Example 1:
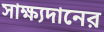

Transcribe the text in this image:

সাক্ষ্যদানের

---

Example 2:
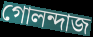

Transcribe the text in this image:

গোলন্দাজ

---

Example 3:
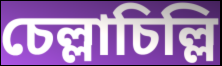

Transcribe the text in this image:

চেল্লাচিল্লি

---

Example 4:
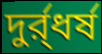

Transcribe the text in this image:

দুর্র্ধর্ষ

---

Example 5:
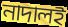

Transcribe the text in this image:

নাদালই